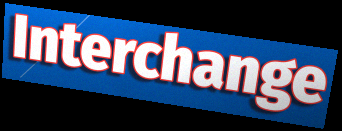
Interchange